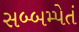
સબ્બમ્પેતં